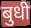
बुधी